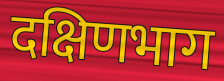
दक्षिणभाग